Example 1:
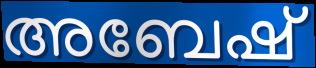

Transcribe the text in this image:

അബേഷ്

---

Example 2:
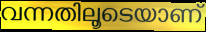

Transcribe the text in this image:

വന്നതിലൂടെയാണ്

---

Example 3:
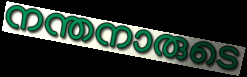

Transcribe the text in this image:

നന്തനാരുടെ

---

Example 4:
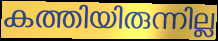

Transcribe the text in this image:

കത്തിയിരുന്നില്ല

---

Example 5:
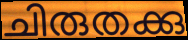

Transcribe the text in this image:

ചിരുതക്കു